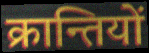
क्रान्तियों